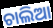
ଚାଲିଆ